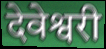
देवेश्वरी